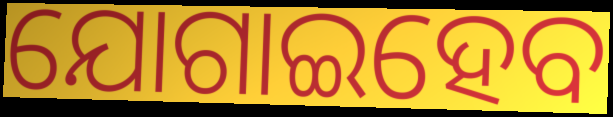
ଯୋଗାଇହେବ